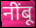
नींबू